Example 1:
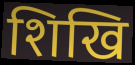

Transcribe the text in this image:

शिखि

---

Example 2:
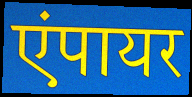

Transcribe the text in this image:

एंपायर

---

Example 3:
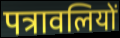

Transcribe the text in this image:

पत्रावलियों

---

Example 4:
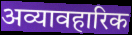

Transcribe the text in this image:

अव्यावहारिक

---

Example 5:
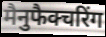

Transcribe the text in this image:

मैनुफैक्चरिंग